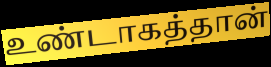
உண்டாகத்தான்